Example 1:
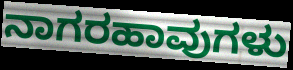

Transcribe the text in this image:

ನಾಗರಹಾವುಗಳು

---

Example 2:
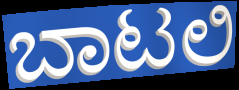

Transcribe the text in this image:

ಬಾಟಲಿ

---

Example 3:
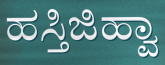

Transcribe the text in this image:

ಹಸ್ತಿಜಿಹ್ವಾ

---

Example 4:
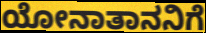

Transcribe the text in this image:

ಯೋನಾತಾನನಿಗೆ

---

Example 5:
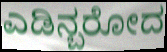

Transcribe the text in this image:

ಎಡಿನ್ಬರೋದ